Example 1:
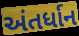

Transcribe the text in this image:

અંતર્ધાન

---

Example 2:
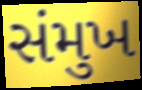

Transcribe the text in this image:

સંમુખ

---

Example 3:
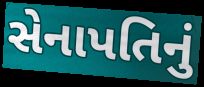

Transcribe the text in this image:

સેનાપતિનું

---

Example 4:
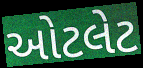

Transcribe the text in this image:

ઓટલેટ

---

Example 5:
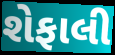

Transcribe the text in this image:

શેફાલી